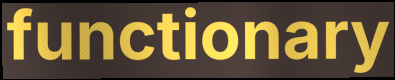
functionary